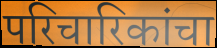
परिचारिकांचा